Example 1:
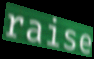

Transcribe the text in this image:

raise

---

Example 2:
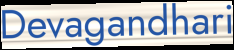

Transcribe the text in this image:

Devagandhari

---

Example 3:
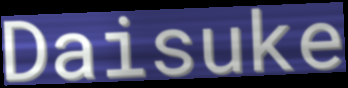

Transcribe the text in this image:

Daisuke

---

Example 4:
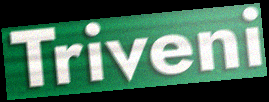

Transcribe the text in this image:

Triveni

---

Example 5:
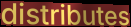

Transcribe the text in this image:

distributes